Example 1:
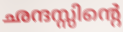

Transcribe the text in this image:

ഛന്ദസ്സിന്റെ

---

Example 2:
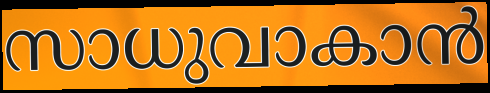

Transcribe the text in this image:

സാധുവാകാൻ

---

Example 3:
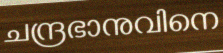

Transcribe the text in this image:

ചന്ദ്രഭാനുവിനെ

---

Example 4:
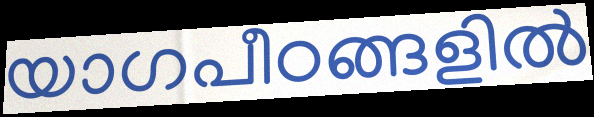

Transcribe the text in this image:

യാഗപീഠങ്ങളിൽ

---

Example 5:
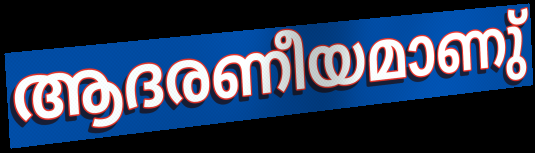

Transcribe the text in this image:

ആദരണീയമാണു്